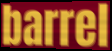
barrel